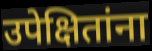
उपेक्षितांना